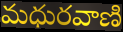
మధురవాణి